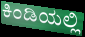
ಕಿಂಡಿಯಲ್ಲಿ